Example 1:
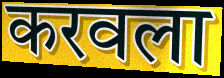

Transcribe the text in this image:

करवला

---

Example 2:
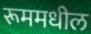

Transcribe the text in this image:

रूममधील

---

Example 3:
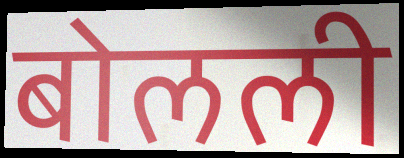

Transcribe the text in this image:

बोलली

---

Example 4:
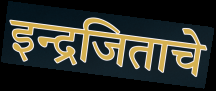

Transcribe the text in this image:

इन्द्रजिताचे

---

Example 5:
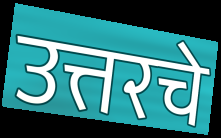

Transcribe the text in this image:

उत्तरचे